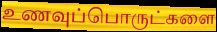
உணவுப்பொருட்களை